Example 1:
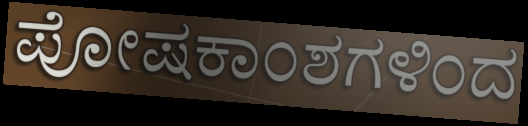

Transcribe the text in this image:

ಪೋಷಕಾಂಶಗಳಿಂದ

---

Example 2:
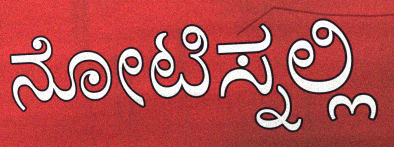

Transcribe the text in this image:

ನೋಟಿಸ್ನಲ್ಲಿ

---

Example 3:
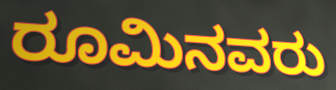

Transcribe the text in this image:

ರೂಮಿನವರು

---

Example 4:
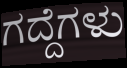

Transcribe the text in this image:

ಗದ್ದೆಗಳು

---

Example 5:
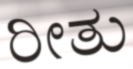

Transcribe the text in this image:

ರೀತು